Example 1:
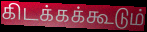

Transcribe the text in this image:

கிடக்கக்கூடும்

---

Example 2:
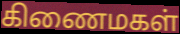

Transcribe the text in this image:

கிணைமகள்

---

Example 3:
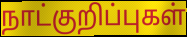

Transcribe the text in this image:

நாட்குறிப்புகள்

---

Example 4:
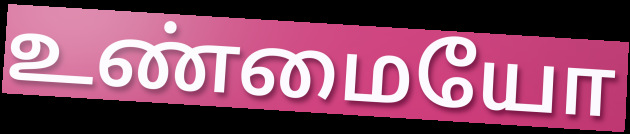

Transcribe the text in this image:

உண்மையோ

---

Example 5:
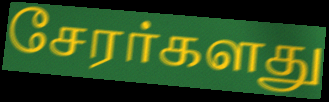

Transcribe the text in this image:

சேரர்களது